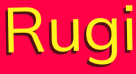
Rugi